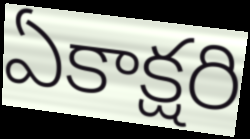
ఏకాక్షరి